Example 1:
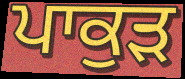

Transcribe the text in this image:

ਪਾਕੁੜ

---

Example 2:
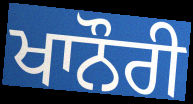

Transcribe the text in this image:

ਖਾਨੌਰੀ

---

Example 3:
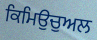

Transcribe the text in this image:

ਕਿਮਿਉਚੁਅਲ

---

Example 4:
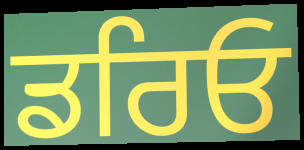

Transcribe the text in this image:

ਡਰਿਓ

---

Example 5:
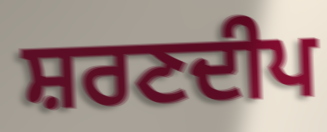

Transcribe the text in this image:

ਸ਼ਰਣਦੀਪ